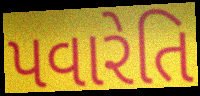
પવારેતિ